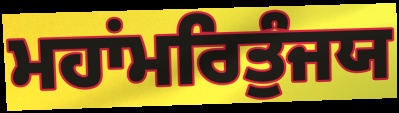
ਮਹਾਂਮਰਿਤੁੰਜਯ